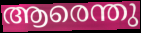
ആരെന്തു